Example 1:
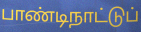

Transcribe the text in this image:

பாண்டிநாட்டுப்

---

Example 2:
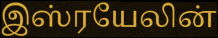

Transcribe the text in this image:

இஸ்ரயேலின்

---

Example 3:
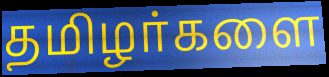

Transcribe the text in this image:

தமிழர்களை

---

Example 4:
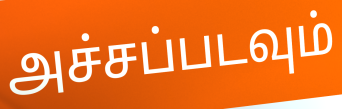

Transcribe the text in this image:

அச்சப்படவும்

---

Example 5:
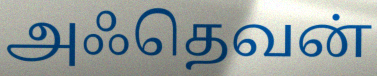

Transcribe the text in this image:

அஃதெவன்